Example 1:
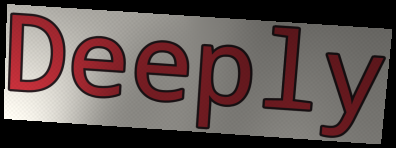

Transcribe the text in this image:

Deeply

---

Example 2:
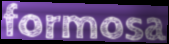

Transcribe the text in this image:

formosa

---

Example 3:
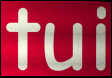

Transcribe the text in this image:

tui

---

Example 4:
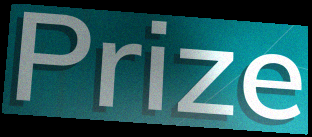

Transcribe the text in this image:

Prize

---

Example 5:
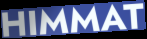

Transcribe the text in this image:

HIMMAT